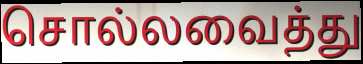
சொல்லவைத்து